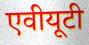
एवीयूटी